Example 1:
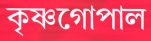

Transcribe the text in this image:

কৃষ্ণগোপাল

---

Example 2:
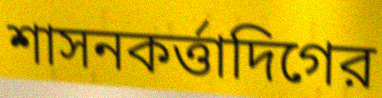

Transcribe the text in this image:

শাসনকর্ত্তাদিগের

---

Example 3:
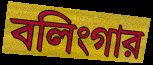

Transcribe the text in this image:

বলিংগার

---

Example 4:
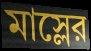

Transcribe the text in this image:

মাস্লের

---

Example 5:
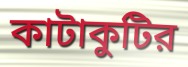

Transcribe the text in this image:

কাটাকুটির